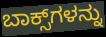
ಬಾಕ್ಸ್‌ಗಳನ್ನು